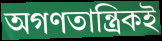
অগণতান্ত্রিকই